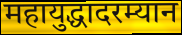
महायुद्धादरम्यान